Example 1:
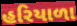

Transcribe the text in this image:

હરિયાળા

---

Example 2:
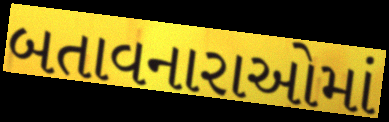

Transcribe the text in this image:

બતાવનારાઓમાં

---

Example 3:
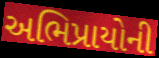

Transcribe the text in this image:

અભિપ્રાયોની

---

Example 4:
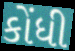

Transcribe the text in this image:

કોંધી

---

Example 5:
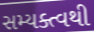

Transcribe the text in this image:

સમ્યક્ત્વથી